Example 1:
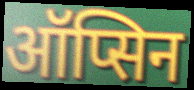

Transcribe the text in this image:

ऑप्सिन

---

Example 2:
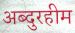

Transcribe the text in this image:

अब्दुरहीम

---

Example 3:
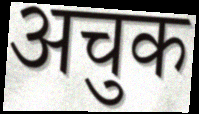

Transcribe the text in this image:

अचुक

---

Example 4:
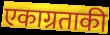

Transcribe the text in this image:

एकाग्रताकी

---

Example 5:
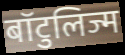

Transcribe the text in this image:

बॉटुलिज्म